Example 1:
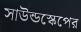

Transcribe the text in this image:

সাউন্ডস্কেপের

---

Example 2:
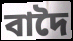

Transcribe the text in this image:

বাদৈ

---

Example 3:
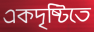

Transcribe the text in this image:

একদৃষ্টিতে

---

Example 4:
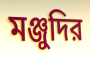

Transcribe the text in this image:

মঞ্জুদির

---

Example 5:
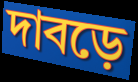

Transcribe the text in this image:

দাবড়ে